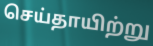
செய்தாயிற்று